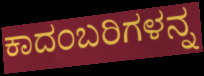
ಕಾದಂಬರಿಗಳನ್ನ